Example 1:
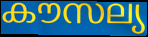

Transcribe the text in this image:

കൗസല്യ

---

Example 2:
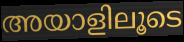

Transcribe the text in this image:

അയാളിലൂടെ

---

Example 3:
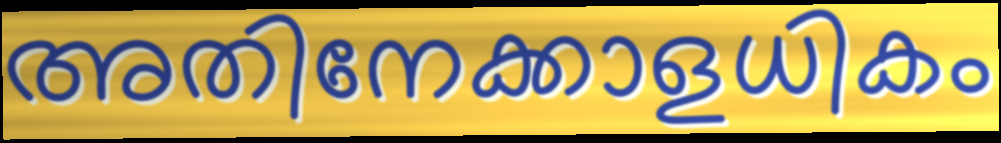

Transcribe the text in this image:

അതിനേക്കാളധികം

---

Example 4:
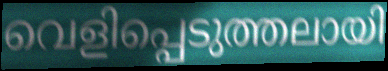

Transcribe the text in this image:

വെളിപ്പെടുത്തലായി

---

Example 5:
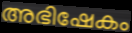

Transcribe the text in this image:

അഭിഷേകം